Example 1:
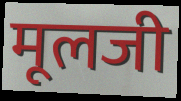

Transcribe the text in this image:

मूलजी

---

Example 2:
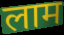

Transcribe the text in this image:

लाम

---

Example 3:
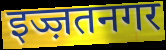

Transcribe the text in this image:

इज्ज़तनगर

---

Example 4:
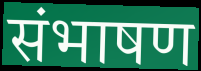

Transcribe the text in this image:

संभाषण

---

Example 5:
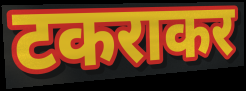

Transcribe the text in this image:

टकराकर